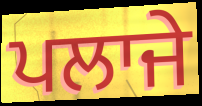
ਪਲਾਜੇ